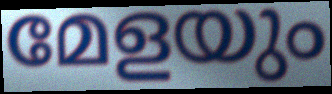
മേളയും